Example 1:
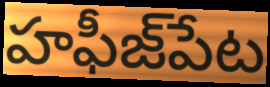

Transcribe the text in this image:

హఫీజ్‌పేట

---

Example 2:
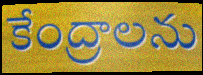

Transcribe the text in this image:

కేంద్రాలను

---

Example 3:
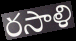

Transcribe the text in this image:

రసాళి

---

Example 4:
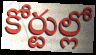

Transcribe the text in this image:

కోర్టుల్లో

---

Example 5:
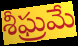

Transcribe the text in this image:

శీఘ్రమే